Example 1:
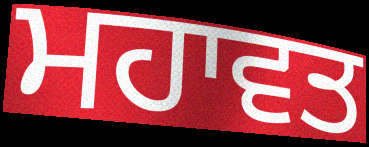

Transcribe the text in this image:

ਮਹਾਵਤ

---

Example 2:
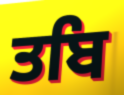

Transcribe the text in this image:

ਤਬਿ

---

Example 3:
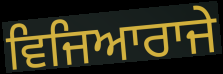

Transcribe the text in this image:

ਵਿਜਿਆਰਾਜੇ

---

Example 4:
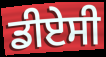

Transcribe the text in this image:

ਡੀਏਸੀ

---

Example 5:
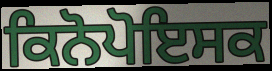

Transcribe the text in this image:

ਕਿਨੋਪੋਇਸਕ